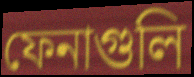
ফেনাগুলি